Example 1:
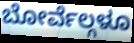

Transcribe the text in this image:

ಬೋರ್ವೆಲ್ಗಳೂ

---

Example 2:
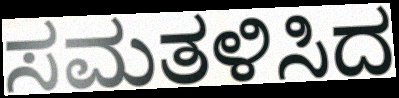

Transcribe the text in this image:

ಸಮತಳಿಸಿದ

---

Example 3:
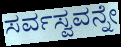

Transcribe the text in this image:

ಸರ್ವಸ್ವವನ್ನೇ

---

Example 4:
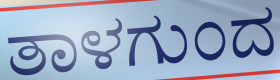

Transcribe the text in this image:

ತಾಳಗುಂದ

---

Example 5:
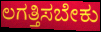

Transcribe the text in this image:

ಲಗತ್ತಿಸಬೇಕು